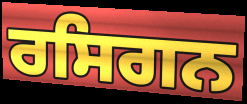
ਰਸਿਗਨ